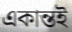
একান্তই